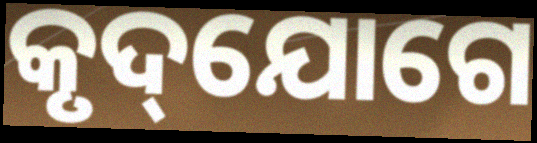
କୃଦ୍‌ଯୋଗେ